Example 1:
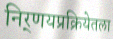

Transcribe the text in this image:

निर्णयप्रक्रियेतला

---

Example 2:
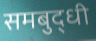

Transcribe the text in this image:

समबुद्धी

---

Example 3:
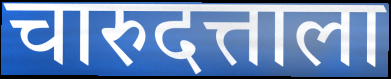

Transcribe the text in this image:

चारुदत्ताला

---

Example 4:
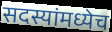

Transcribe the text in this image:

सदस्यांमध्येच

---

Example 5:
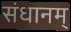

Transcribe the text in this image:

संधानम्